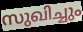
സുഖിച്ചും